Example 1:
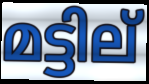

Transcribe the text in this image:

മട്ടില്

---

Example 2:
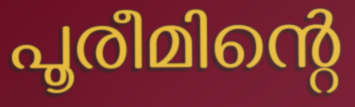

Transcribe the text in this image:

പൂരീമിന്റെ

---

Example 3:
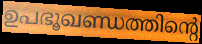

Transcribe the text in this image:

ഉപഭൂഖണ്ഡത്തിന്റെ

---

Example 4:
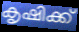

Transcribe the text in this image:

കൃഷിക്ക്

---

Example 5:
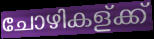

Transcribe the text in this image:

ചോഴികള്ക്ക്